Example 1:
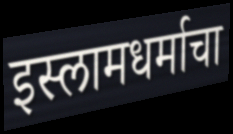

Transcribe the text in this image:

इस्लामधर्माचा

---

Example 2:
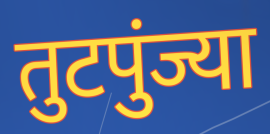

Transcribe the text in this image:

तुटपुंज्या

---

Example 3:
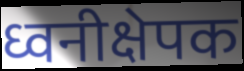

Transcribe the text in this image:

ध्वनीक्षेपक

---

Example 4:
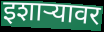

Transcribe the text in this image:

इशाऱ्यावर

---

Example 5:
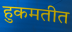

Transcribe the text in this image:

हुकमतीत